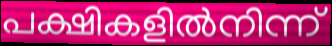
പക്ഷികളിൽനിന്ന്